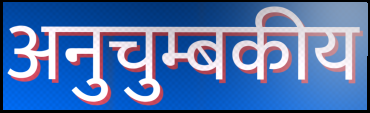
अनुचुम्बकीय